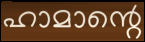
ഹാമാന്റെ